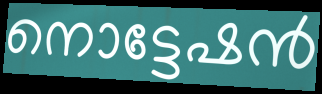
നൊട്ടേഷൻ